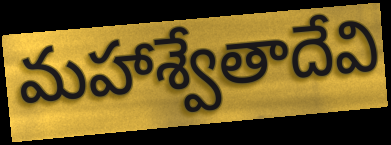
మహాశ్వేతాదేవి